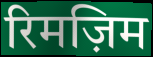
रिमज़िम